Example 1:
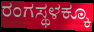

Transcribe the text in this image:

ರಂಗಸ್ಥಳಕ್ಕೂ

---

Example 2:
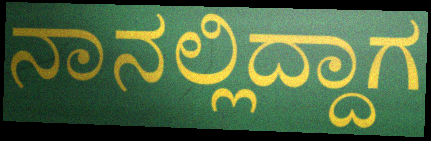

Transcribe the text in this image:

ನಾನಲ್ಲಿದ್ದಾಗ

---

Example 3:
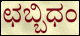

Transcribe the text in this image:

ಛಬ್ಬಿಧಂ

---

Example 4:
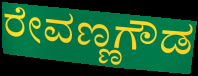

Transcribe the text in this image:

ರೇವಣ್ಣಗೌಡ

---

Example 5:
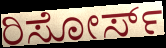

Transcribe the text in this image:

ರಿಸೋರ್ಸ್